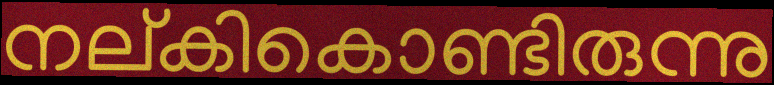
നല്കികൊണ്ടിരുന്നു